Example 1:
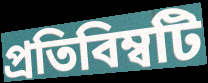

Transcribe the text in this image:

প্রতিবিম্বটি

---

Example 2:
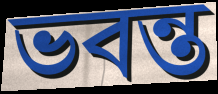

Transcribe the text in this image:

ভবন্ত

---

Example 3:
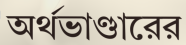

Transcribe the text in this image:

অর্থভাণ্ডারের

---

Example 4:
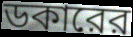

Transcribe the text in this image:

ডকারের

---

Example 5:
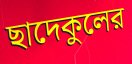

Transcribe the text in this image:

ছাদেকুলের